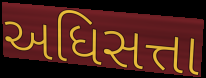
અધિસત્તા